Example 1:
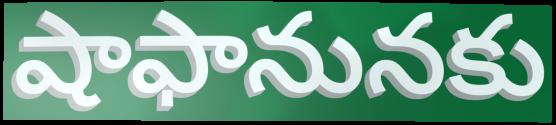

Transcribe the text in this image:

షాఫానునకు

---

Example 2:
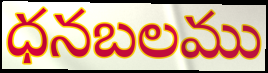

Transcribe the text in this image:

ధనబలము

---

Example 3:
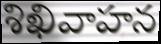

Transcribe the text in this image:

శిఖివాహన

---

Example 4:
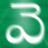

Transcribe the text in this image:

వె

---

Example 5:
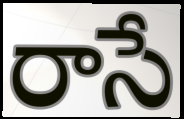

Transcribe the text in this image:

రాసే